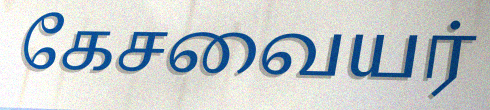
கேசவையர்